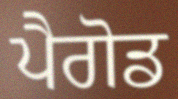
ਪੈਗੋਡ